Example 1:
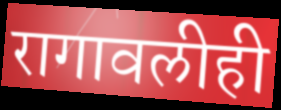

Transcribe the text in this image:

रागावलीही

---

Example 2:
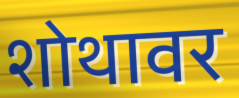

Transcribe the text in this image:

शोथावर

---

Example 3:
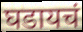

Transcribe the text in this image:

घडायचं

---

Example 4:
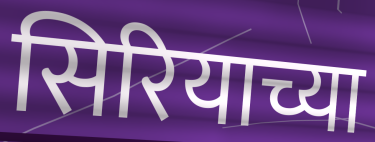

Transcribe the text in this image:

सिरियाच्या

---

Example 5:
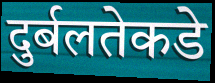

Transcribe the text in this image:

दुर्बलतेकडे